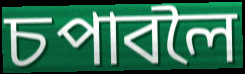
চপাবলৈ